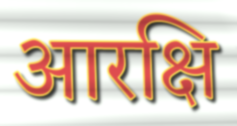
आरक्षि